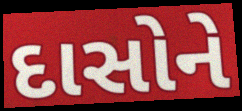
દાસોને